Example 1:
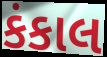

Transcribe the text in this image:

કંકાલ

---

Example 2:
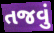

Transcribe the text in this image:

તજવું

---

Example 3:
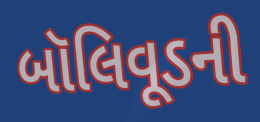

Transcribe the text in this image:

બૉલિવૂડની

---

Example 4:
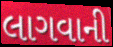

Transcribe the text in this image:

લાગવાની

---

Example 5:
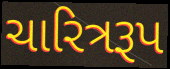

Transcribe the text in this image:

ચારિત્રરૂપ